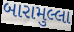
બારામુલ્લા